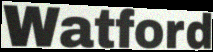
Watford